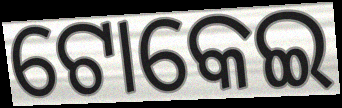
ଟୋକେଇ